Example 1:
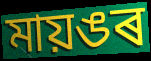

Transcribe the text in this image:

মায়ঙৰ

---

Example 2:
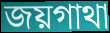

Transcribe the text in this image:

জয়গাথা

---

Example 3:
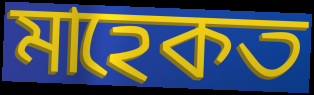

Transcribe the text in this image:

মাহেকত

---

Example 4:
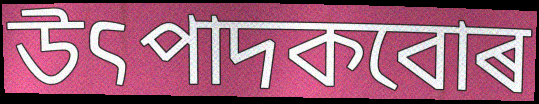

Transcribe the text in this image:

উৎপাদকবোৰ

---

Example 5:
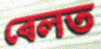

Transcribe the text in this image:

ৰেলত